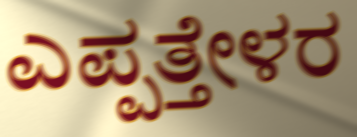
ಎಪ್ಪತ್ತೇಳರ